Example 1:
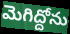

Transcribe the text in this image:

మెగిద్దోను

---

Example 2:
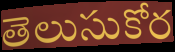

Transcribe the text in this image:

తెలుసుకోర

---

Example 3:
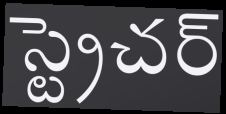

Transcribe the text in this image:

స్ట్రెచర్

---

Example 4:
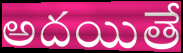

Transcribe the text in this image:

అదయితే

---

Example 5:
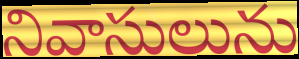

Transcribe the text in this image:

నివాసులును